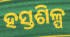
ହସ୍ତଶିଳ୍ପ